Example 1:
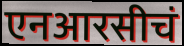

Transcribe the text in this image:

एनआरसीचं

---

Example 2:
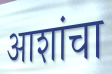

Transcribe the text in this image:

आशांचा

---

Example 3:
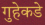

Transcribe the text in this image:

गुहेकडे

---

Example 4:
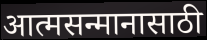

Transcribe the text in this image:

आत्मसन्मानासाठी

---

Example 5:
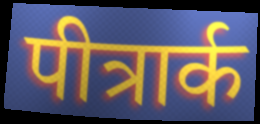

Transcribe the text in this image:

पीत्रार्क